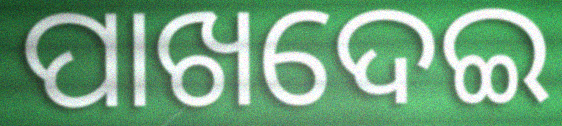
ପାଖଦେଇ